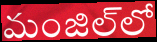
మంజిల్‌లో